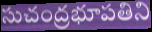
సుచంద్రభూపతిని